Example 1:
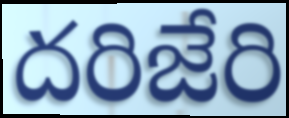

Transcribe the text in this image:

దరిజేరి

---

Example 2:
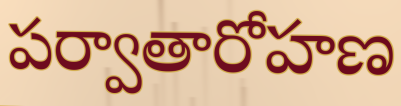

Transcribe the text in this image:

పర్వాతారోహణ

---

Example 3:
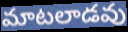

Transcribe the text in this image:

మాటలాడవు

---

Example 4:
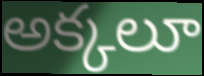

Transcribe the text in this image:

అక్కలూ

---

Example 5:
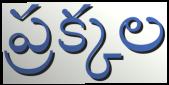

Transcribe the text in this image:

ప్రక్కల